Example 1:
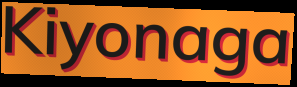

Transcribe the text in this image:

Kiyonaga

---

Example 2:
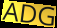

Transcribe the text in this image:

ADG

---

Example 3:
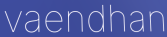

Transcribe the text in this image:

vaendhan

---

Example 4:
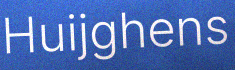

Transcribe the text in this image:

Huijghens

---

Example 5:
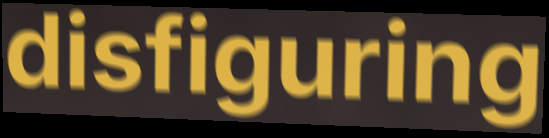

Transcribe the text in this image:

disfiguring